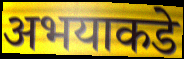
अभयाकडे